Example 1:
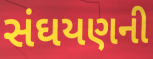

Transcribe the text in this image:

સંઘયણની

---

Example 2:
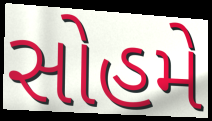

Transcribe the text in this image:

સોહમે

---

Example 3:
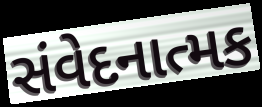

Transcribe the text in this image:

સંવેદનાત્મક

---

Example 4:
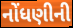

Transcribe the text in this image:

નોંધણીની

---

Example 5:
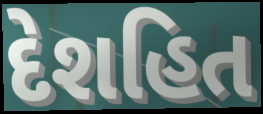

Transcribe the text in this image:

દેશહિત